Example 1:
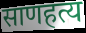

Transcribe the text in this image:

साणहत्य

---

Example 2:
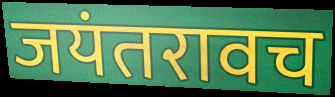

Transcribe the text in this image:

जयंतरावच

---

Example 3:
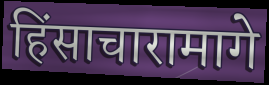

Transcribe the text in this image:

हिंसाचारामागे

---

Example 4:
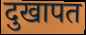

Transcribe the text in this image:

दुखापत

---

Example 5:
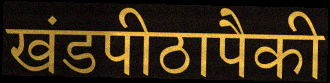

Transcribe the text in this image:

खंडपीठापैकी